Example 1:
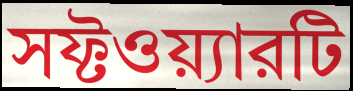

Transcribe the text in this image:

সফ্টওয়্যারটি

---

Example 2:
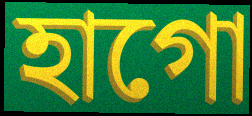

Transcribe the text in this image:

হাগো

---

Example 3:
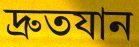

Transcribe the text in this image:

দ্রুতযান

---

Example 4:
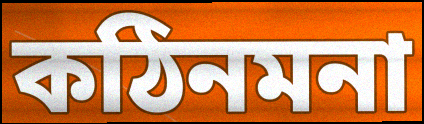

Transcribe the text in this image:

কঠিনমনা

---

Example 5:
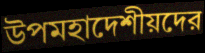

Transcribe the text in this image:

উপমহাদেশীয়দের